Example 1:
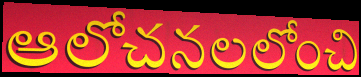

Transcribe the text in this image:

ఆలోచనలలోంచి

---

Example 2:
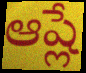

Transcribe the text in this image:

ఆష్లే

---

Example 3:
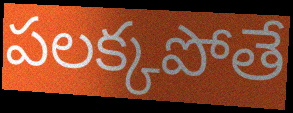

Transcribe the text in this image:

పలక్కపోతే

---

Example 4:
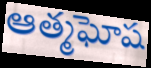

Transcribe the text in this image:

ఆత్మఘోష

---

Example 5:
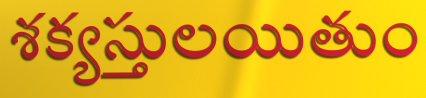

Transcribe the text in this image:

శక్యస్తులయితుం